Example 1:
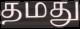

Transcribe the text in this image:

தமது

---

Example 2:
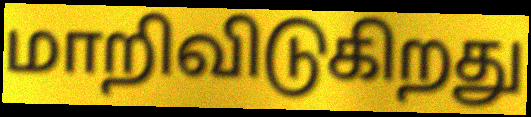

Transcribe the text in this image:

மாறிவிடுகிறது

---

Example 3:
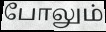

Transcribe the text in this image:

போலும்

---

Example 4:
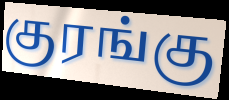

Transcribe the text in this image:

குரங்கு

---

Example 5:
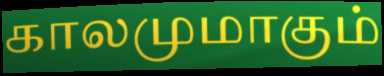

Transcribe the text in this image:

காலமுமாகும்